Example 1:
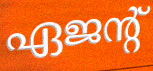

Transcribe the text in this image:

ഏജന്റ്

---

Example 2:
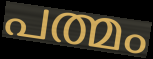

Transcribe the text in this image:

പത്മം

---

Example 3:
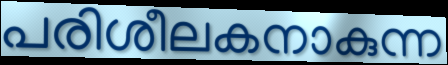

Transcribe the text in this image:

പരിശീലകനാകുന്ന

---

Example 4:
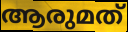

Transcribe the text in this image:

ആരുമത്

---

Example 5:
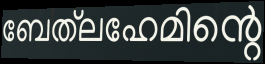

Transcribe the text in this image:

ബേത്‌ലഹേമിന്റെ